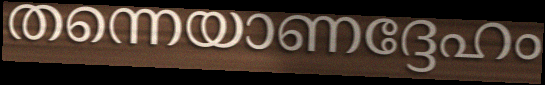
തന്നെയാണദ്ദേഹം